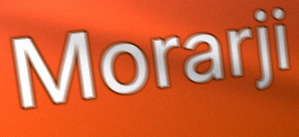
Morarji